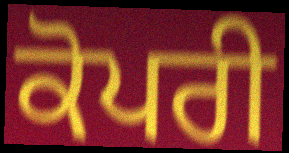
ਕੋਪਰੀ